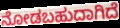
ನೋಡಬಹುದಾಗಿದೆ